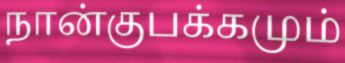
நான்குபக்கமும்